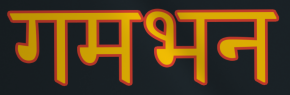
गमभन